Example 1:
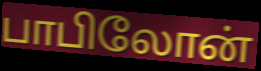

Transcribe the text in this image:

பாபிலோன்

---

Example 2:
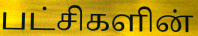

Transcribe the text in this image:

பட்சிகளின்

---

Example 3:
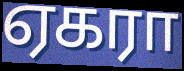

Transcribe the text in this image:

ஏகரா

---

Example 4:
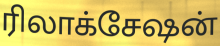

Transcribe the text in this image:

ரிலாக்சேஷன்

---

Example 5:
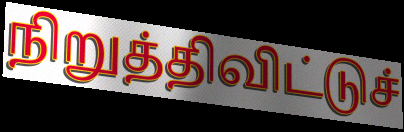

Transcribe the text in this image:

நிறுத்திவிட்டுச்